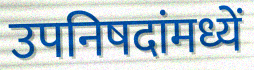
उपनिषदांमध्यें